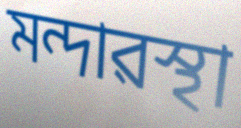
মন্দাৱস্থা